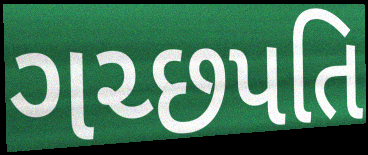
ગચ્છપતિ